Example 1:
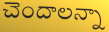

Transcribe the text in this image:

చెందాలన్నా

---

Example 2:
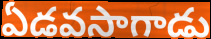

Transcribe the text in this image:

ఏడవసాగాడు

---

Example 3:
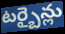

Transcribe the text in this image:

టర్బైన్లు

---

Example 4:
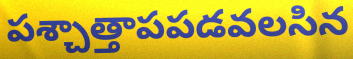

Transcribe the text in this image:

పశ్చాత్తాపపడవలసిన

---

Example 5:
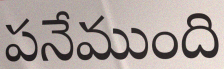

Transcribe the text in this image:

పనేముంది